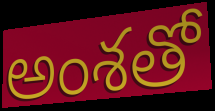
అంశతో